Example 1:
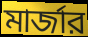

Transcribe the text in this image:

মার্জার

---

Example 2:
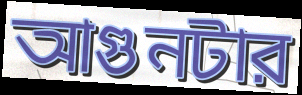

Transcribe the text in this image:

আগুনটার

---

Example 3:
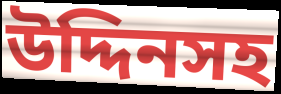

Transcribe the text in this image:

উদ্দিনসহ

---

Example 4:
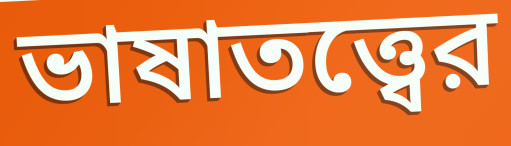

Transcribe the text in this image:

ভাষাতত্ত্বের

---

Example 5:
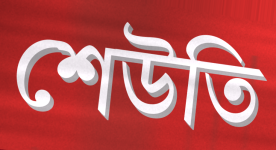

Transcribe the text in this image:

শেউতি